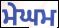
ਮੇਘਮ